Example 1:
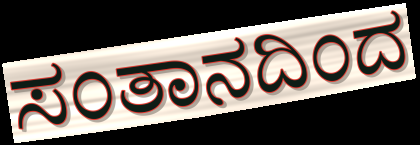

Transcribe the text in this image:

ಸಂತಾನದಿಂದ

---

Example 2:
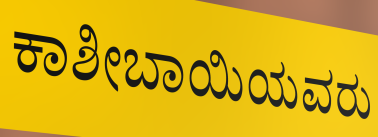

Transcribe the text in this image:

ಕಾಶೀಬಾಯಿಯವರು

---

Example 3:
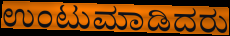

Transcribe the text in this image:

ಉಂಟುಮಾಡಿದರು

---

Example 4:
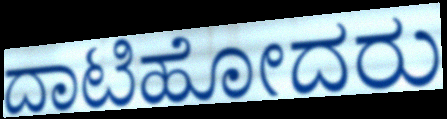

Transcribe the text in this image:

ದಾಟಿಹೋದರು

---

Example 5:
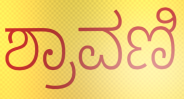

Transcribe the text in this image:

ಶ್ರಾವಣಿ